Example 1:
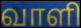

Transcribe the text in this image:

வாளி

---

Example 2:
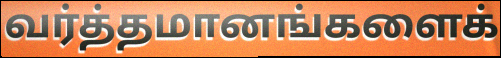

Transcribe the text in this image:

வர்த்தமானங்களைக்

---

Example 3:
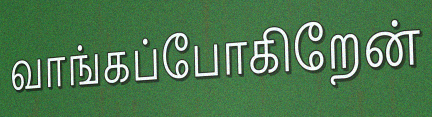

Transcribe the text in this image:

வாங்கப்போகிறேன்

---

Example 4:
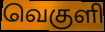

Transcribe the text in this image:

வெகுளி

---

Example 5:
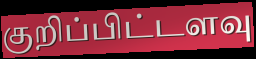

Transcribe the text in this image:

குறிப்பிட்டளவு